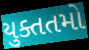
યુક્તતમો